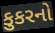
કુકરનો